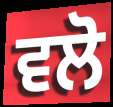
ਵਲੋ